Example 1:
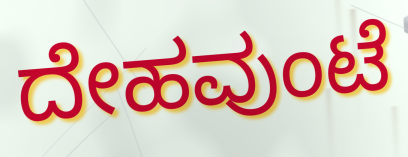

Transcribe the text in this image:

ದೇಹವುಂಟೆ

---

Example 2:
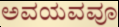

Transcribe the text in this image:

ಅವಯವವೂ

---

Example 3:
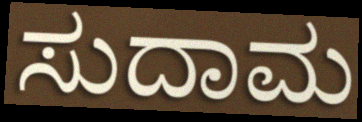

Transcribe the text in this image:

ಸುದಾಮ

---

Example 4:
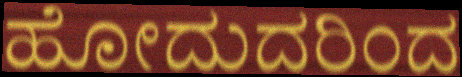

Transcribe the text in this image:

ಹೋದುದರಿಂದ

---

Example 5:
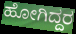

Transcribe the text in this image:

ಹೋಗಿದ್ದರ